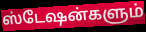
ஸ்டேஷன்களும்